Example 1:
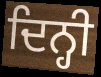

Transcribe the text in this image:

ਦਿਨ੍ਹੀ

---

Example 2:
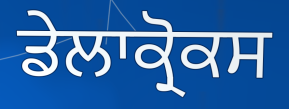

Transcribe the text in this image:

ਡੇਲਾਕ੍ਰੋਕਸ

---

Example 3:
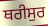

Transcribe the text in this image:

ਥਰੀਸੁਰ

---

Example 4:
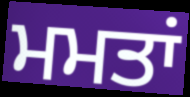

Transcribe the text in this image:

ਮਮਤਾਂ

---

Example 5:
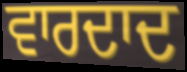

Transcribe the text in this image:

ਵਾਰਦਾਦ